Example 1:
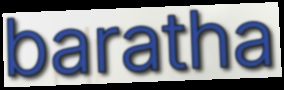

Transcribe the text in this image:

baratha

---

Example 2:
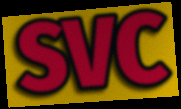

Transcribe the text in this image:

SVC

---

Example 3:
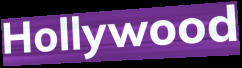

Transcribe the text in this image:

Hollywood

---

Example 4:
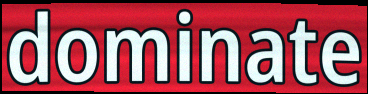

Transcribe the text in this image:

dominate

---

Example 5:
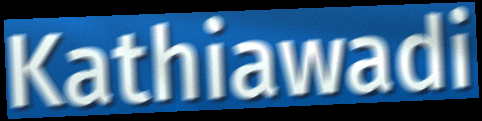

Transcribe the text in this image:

Kathiawadi